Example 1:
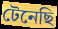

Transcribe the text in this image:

টেনেছি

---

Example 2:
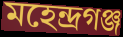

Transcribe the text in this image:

মহেন্দ্রগঞ্জ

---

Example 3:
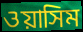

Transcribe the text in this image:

ওয়াসিম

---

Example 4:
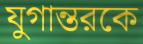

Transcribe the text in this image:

যুগান্তরকে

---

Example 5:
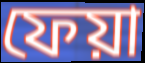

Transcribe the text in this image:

ফেয়া